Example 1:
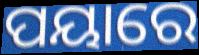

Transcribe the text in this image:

ପୟାରେ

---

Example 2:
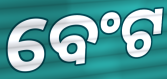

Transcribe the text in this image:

ବେଂଟ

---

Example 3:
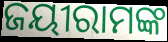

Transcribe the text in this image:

ଜୟୀରାମଙ୍କ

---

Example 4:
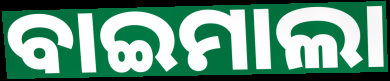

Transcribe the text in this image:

ବାଇମାଲା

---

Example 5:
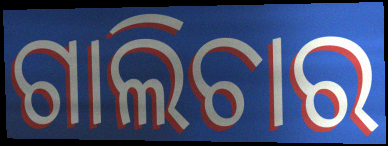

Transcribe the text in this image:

ଗାଲିଚାର